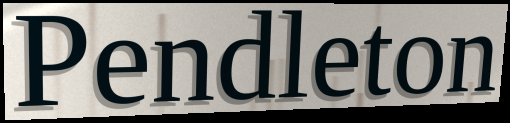
Pendleton